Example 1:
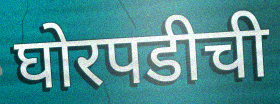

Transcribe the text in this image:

घोरपडीची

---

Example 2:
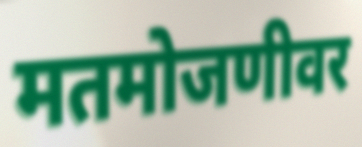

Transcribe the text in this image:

मतमोजणीवर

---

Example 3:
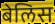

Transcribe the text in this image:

बेलिस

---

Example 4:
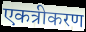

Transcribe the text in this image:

एकत्रीकरण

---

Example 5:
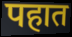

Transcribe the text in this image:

पहात